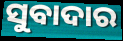
ସୁବାଦାର